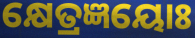
କ୍ଷେତ୍ରଜ୍ଞୟୋଃ